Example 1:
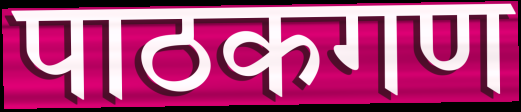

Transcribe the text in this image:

पाठकगण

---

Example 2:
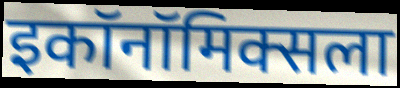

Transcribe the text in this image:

इकॉनॉमिक्सला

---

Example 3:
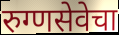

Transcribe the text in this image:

रुग्णसेवेचा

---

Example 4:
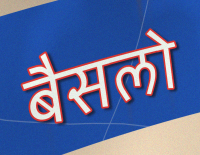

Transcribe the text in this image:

बैसलो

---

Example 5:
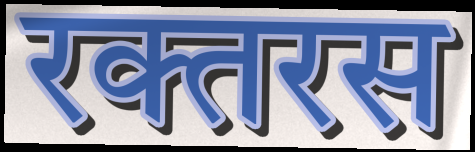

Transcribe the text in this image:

रक्तरस